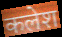
कलेश